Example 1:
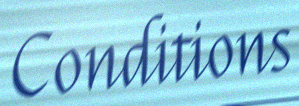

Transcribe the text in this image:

Conditions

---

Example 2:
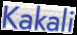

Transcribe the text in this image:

Kakali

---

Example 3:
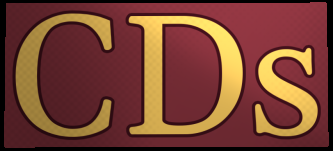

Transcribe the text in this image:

CDs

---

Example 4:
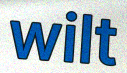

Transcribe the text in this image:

wilt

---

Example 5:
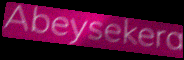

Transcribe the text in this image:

Abeysekera